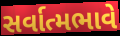
સર્વાત્મભાવે